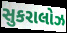
સુકરાલોઝ